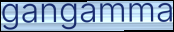
gangamma